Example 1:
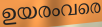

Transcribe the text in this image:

ഉയരംവരെ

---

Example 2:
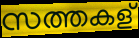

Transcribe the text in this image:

സത്തകള്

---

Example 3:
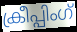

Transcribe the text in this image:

ക്രീപ്പിംഗ്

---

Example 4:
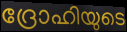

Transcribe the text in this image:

ദ്രോഹിയുടെ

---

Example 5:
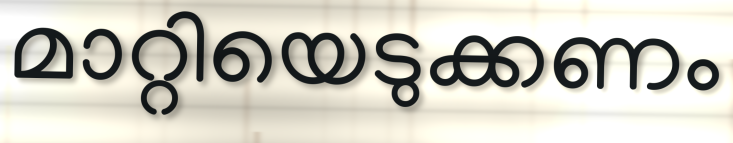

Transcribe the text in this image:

മാറ്റിയെടുക്കണം